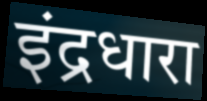
इंद्रधारा